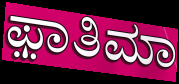
ಫ಼ಾತಿಮಾ